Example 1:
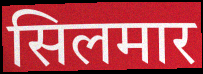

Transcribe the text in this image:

सिलमार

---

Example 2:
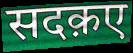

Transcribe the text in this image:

सदक़ए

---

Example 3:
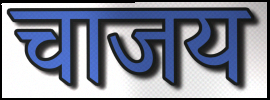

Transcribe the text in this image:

चाजय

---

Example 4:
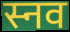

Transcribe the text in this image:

स्नव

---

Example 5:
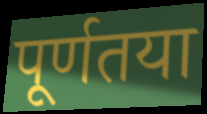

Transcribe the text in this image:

पूर्णतया